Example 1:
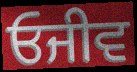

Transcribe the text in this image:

ਓਜੀਵ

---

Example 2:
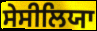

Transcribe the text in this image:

ਸੇਸੀਲਿਯਾ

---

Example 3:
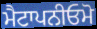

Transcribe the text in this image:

ਮੈਟਾਪਨੀਓਮੋ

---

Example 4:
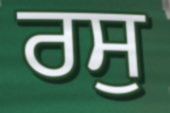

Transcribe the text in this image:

ਰਸੁ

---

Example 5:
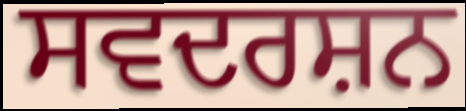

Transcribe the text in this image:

ਸਵਦਰਸ਼ਨ